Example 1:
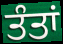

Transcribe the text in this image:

ਤੰਤਾਂ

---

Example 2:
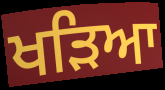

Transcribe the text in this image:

ਖੜਿਆ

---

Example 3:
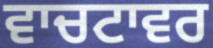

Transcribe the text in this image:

ਵਾਚਟਾਵਰ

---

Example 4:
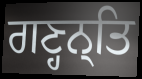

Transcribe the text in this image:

ਗਣ੍ਹਨ੍ਤਿ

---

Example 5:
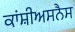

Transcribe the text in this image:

ਕਾਂਸ਼ੀਅਸਨੈਸ